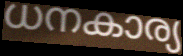
ധനകാര്യ